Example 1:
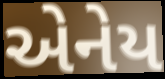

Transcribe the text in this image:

એનેય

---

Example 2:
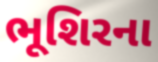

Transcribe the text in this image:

ભૂશિરના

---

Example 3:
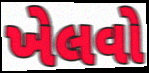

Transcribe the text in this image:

ખેલવો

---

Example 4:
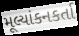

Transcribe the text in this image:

મૂલ્યાંકનકર્તા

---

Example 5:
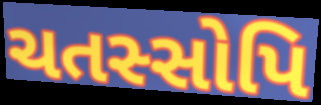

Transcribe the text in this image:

ચતસ્સોપિ